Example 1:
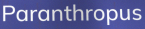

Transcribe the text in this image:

Paranthropus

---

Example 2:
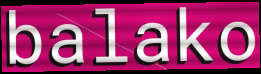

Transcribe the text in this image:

balako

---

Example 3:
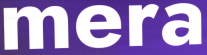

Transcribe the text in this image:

mera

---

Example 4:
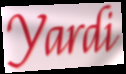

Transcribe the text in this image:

Yardi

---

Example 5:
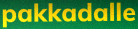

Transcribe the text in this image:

pakkadalle